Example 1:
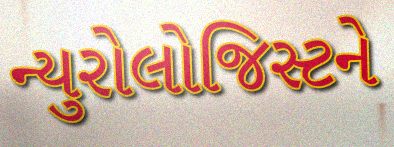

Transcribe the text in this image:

ન્યુરોલોજિસ્ટને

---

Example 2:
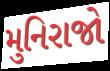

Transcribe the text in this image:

મુનિરાજો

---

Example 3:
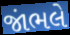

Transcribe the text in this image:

જાંભલે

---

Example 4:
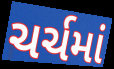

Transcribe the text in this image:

ચર્ચમાં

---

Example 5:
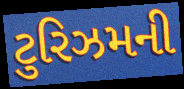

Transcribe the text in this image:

ટુરિઝમની